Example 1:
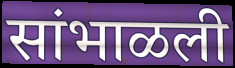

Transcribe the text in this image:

सांभाळली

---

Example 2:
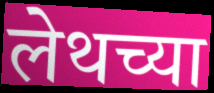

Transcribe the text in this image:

लेथच्या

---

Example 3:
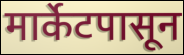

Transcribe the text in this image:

मार्केटपासून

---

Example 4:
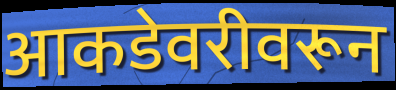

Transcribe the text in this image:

आकडेवरीवरून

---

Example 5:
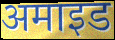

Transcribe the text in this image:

अमाइड